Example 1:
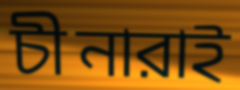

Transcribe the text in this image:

চীনারাই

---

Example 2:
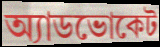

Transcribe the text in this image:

অ্যাডভোকেট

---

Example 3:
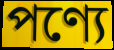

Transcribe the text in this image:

পণ্যে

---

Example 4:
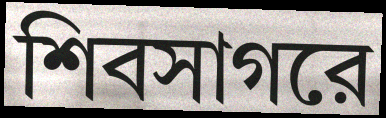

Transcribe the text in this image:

শিবসাগরে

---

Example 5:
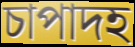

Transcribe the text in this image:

চাপাদহ